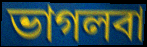
ভাগলবা